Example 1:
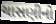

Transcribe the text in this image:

ચાસણીનો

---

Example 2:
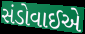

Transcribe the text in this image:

સંડોવાઈએ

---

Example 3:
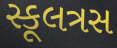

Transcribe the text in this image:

સ્કૂલત્રસ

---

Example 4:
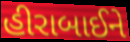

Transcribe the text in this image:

હીરાબાઈને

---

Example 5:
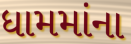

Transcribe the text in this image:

ધામમાંના